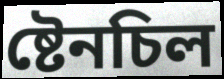
ষ্টেনচিল